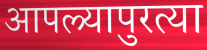
आपल्यापुरत्या